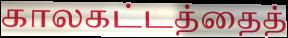
காலகட்டத்தைத்